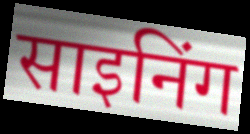
साइनिंग